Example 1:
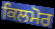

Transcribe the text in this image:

ਕਿਲਮੋਰ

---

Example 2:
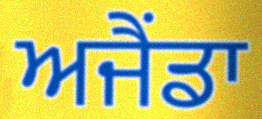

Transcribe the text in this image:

ਅਜੈਂਡਾ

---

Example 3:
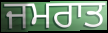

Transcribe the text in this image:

ਜਮਰਾਤ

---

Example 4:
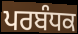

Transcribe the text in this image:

ਪਰਬੰਧਕ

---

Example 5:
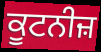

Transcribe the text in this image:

ਕੂਟਨੀਜ਼